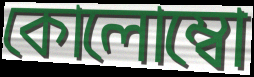
কোলোম্বো